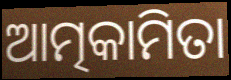
ଆତ୍ମକାମିତା